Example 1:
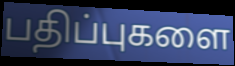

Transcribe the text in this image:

பதிப்புகளை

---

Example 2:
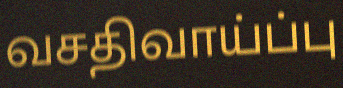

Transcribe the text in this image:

வசதிவாய்ப்பு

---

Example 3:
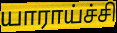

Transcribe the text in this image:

யாராய்ச்சி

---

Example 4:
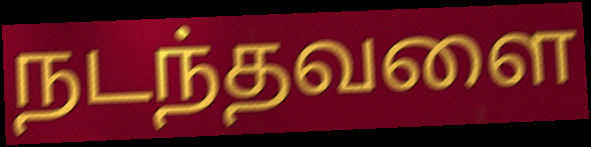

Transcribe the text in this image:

நடந்தவளை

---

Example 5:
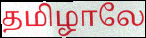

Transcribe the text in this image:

தமிழாலே